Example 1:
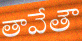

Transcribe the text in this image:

తావేతౌ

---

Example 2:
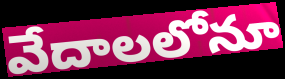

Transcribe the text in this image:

వేదాలలోనూ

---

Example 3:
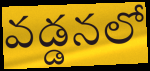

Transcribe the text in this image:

వడ్డనలో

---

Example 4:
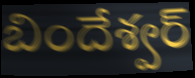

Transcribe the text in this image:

బిందేశ్వర్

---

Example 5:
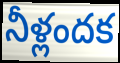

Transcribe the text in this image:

నీళ్లందక